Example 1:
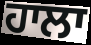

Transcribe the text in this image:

ਹਾਲਾ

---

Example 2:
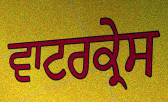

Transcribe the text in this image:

ਵਾਟਰਕ੍ਰੇਸ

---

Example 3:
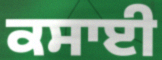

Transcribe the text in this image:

ਕਸਾਈ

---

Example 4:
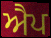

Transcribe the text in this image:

ਐਪ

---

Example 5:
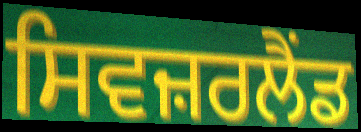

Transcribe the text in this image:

ਸਿਵਜ਼ਰਲੈਂਡ